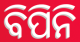
ବିପିନି